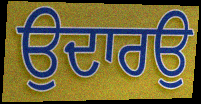
ਉਦਾਰਉ